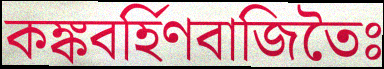
কঙ্কবর্হিণবাজিতৈঃ